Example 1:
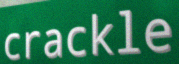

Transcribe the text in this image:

crackle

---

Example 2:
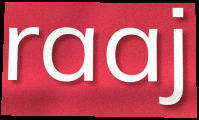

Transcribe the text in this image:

raaj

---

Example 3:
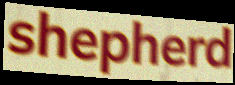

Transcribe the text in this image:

shepherd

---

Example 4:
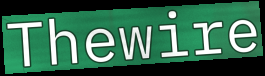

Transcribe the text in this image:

Thewire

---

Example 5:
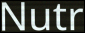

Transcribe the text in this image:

Nutr